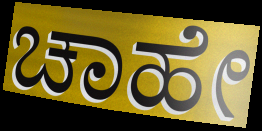
ಚಾಹೇ